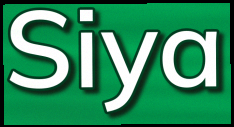
Siya